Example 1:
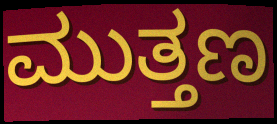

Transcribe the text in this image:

ಮುತ್ತಣ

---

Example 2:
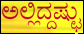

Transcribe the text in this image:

ಅಲ್ಲಿದ್ದಷ್ಟು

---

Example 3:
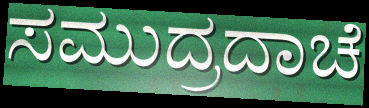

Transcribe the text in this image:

ಸಮುದ್ರದಾಚೆ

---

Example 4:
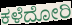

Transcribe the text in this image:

ಕಳೆದೋರಿ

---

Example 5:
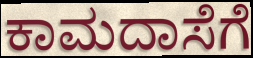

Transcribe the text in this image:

ಕಾಮದಾಸೆಗೆ